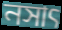
নসাৎ